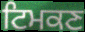
ਟਿਮਕਣ